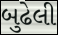
બુઢેલી